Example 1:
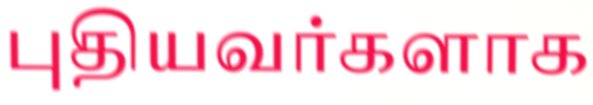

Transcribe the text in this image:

புதியவர்களாக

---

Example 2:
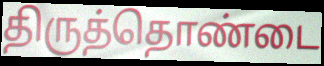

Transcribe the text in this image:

திருத்தொண்டை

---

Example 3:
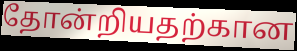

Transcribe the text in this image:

தோன்றியதற்கான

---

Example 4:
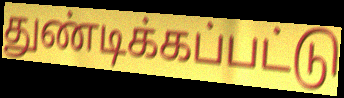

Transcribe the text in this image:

துண்டிக்கப்பட்டு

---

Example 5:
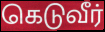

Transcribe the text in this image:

கெடுவீர்